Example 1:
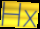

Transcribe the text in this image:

Hx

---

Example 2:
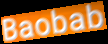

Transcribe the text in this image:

Baobab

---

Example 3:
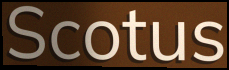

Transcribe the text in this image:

Scotus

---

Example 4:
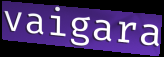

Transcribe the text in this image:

vaigara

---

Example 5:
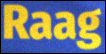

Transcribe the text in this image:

Raag